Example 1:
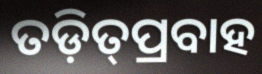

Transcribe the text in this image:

ତଡ଼ିତ୍‍ପ୍ରବାହ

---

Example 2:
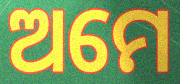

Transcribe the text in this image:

ଅମେ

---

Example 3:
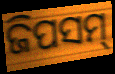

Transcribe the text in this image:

ଜିପସମ୍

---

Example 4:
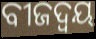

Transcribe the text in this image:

ବୀଜଦ୍ଵୟ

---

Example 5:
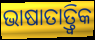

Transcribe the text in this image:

ଭାଷାତାତ୍ତ୍ୱିକ